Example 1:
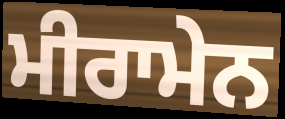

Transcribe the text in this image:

ਮੀਰਾਮੇਨ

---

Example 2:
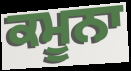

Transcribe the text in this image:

ਕਮੂਨਾ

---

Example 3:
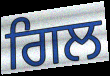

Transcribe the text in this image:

ਗਿਲ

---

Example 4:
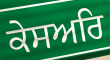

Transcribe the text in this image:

ਕੇਸਅਰਿ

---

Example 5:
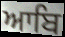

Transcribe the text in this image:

ਆਬਿ